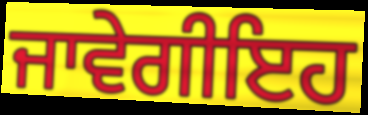
ਜਾਵੇਗੀਇਹ